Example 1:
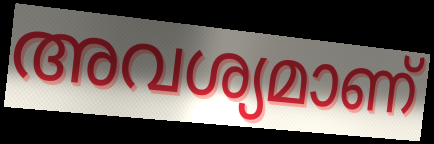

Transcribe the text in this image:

അവശ്യമാണ്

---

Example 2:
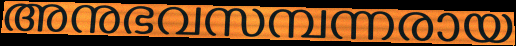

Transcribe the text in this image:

അനുഭവസമ്പന്നരായ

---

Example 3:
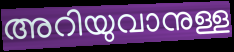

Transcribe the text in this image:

അറിയുവാനുള്ള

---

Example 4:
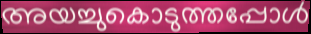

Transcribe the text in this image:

അയച്ചുകൊടുത്തപ്പോൾ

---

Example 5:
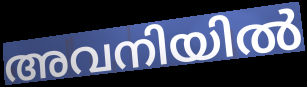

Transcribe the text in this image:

അവനിയിൽ